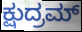
ಕ್ಷುದ್ರಮ್